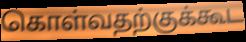
கொள்வதற்குக்கூட